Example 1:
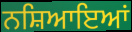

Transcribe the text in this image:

ਨਸ਼ਿਆਇਆਂ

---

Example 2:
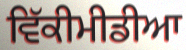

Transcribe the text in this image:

ਵਿੱਕੀਮੀਡੀਆ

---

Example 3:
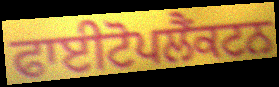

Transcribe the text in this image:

ਫਾਈਟੋਪਲੈਂਕਟਨ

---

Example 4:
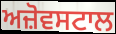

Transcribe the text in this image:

ਅਜ਼ੋਵਸਟਾਲ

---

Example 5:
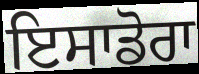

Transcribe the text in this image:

ਇਸਾਡੋਰਾ